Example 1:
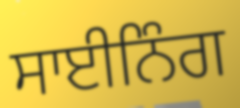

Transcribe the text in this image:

ਸਾਈਨਿੰਗ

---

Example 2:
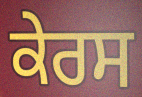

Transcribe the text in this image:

ਕੇਰਸ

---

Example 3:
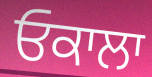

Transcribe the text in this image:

ਓਕਾਲਾ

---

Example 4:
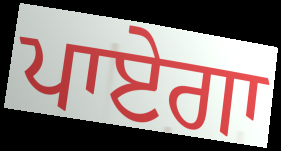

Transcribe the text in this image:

ਪਾਏਗਾ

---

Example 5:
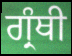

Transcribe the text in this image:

ਗ੍ਰੰਥੀ